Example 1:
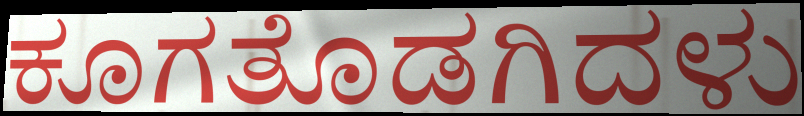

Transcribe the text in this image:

ಕೂಗತೊಡಗಿದಳು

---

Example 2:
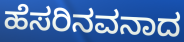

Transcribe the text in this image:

ಹೆಸರಿನವನಾದ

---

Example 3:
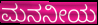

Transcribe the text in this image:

ಮನನೀಯ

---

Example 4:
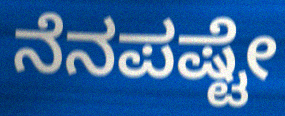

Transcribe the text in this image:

ನೆನಪಷ್ಟೇ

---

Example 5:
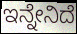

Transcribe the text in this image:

ಇನ್ನೇನಿದೆ